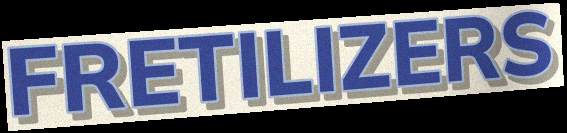
FRETILIZERS